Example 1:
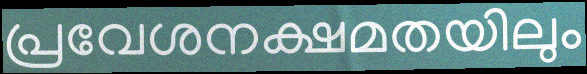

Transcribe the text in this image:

പ്രവേശനക്ഷമതയിലും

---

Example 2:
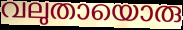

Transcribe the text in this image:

വലുതായൊരു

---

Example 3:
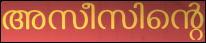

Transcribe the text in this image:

അസീസിന്റെ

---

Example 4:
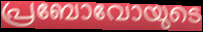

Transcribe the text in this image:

പ്രബോവോയുടെ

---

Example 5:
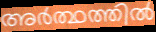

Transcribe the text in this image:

അർത്ഥത്തിൽ